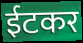
ईटकर